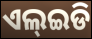
ଏଲ୍ଇଡି